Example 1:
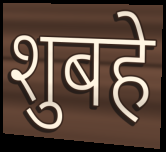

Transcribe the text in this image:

शुबहे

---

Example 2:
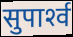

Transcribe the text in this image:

सुपार्श्व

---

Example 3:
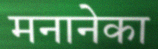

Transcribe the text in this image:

मनानेका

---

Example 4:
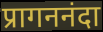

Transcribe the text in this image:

प्रागननंदा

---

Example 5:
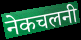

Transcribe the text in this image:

नेकचलनी